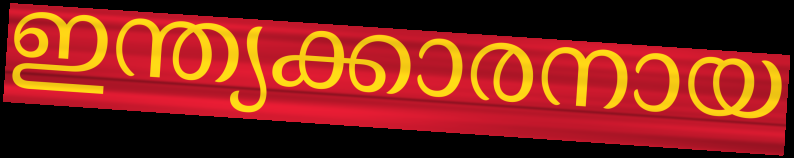
ഇന്ത്യക്കാരനായ